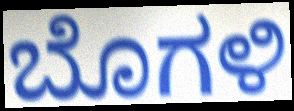
ಬೊಗಳಿ